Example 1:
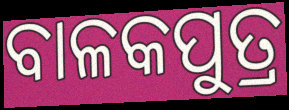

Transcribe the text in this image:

ବାଳକପୁତ୍ର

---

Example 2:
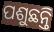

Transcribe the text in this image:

ପଶୁଛନ୍ତି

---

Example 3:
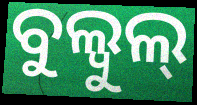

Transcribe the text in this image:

ବୁଲ୍ବୁଲ୍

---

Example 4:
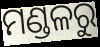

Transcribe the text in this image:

ମଣ୍ଡଳରୁ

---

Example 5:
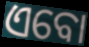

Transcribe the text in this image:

ଏବୋ